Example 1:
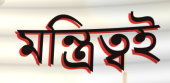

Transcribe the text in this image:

মন্ত্রিত্বই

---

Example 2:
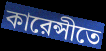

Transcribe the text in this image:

কারেন্সীতে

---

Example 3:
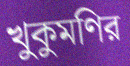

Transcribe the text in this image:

খুকুমণির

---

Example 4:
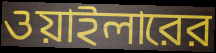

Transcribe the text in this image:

ওয়াইলারের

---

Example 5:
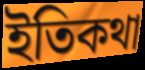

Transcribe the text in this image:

ইতিকথা